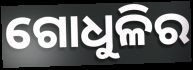
ଗୋଧୁଳିର